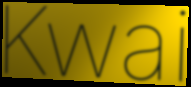
Kwai